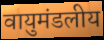
वायुमंडलीय